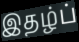
இதழ்ப்